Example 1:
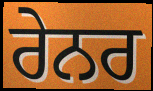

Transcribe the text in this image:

ਰੇਨਰ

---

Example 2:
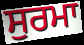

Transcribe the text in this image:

ਸੁਰਮਾ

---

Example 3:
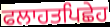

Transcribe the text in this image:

ਫਲਾਹਤਪਿਛੇਹ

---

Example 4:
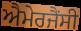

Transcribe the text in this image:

ਐਮੇਰਜੈਂਸੀ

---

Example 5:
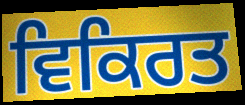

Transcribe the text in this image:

ਵਿਕਿਰਤ